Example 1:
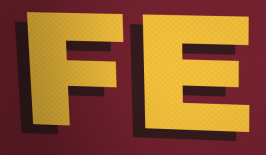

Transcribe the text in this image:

FE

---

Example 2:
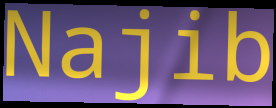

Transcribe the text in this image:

Najib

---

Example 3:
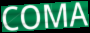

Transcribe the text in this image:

COMA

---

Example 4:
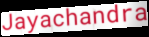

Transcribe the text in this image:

Jayachandra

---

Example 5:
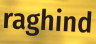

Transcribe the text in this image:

raghind